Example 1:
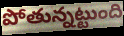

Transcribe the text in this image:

పోతున్నట్టుంది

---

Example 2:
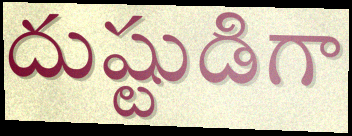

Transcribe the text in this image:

దుష్టుడిగా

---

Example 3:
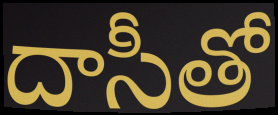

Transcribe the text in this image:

దాసీతో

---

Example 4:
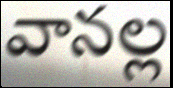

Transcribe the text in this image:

వానల్ల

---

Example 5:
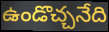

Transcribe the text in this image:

ఉండొచ్చనేది